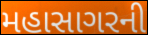
મહાસાગરની